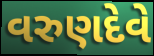
વરુણદેવે